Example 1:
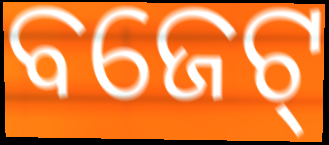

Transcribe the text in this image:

ବଜେଟ୍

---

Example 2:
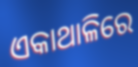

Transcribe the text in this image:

ଏକାଥାଳିରେ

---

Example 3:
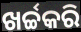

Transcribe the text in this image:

ଖର୍ଚ୍ଚକରି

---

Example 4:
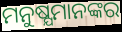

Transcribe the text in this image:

ମନୁଷ୍ଯମାନଙ୍କର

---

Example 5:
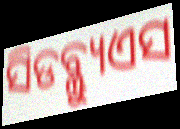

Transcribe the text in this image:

ସିଡବ୍ଲ୍ୟୁଏସ